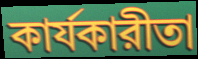
কার্যকারীতা